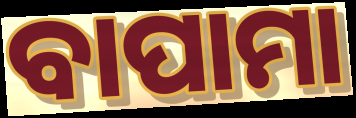
ବାପାମା